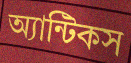
অ্যান্টিকস